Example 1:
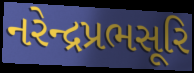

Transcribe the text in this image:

નરેન્દ્રપ્રભસૂરિ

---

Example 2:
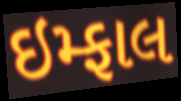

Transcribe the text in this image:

ઇમ્ફાલ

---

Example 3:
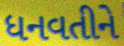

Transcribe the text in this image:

ધનવતીને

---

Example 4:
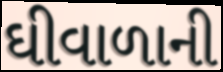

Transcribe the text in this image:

ઘીવાળાની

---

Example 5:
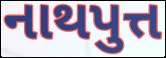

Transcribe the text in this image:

નાથપુત્ત